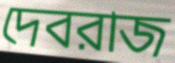
দেবরাজ